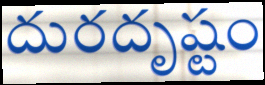
దురదృష్టం